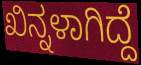
ಖಿನ್ನಳಾಗಿದ್ದೆ